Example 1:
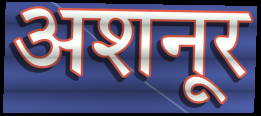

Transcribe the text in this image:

अशनूर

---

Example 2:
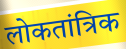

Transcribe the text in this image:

लोकतांत्रिक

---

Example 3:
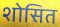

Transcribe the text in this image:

शोसित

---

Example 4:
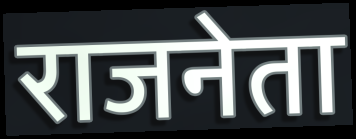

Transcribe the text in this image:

राजनेता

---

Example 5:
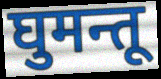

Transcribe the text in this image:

घुमन्तू